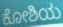
ಕೋಶಿಯ